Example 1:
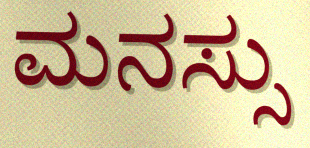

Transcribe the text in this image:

ಮನಸ್ಸು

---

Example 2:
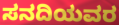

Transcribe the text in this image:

ಸನದಿಯವರ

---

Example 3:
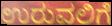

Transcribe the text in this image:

ಉರುವಲಿಗೆ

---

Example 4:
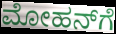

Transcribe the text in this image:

ಮೋಹನ್‌ಗೆ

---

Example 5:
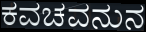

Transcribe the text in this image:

ಕವಚವನುನ